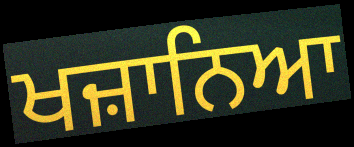
ਖਜ਼ਾਨਿਆ